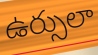
ఉర్సులా